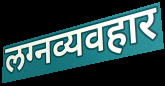
लग्नव्यवहार